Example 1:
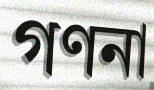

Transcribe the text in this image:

গণনা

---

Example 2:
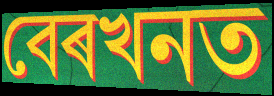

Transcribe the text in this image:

বেৰখনত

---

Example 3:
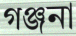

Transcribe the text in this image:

গঞ্জনা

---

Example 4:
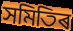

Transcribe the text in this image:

সমিতিৰ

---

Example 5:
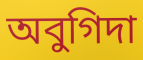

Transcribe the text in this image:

অবুগিদা